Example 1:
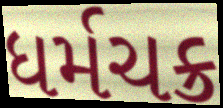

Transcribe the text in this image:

ધર્મચક્ર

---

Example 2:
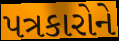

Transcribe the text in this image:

પત્રકારોને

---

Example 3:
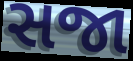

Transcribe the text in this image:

સજા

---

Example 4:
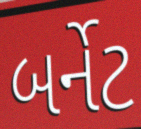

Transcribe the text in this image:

બર્નેટ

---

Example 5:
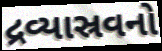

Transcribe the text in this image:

દ્રવ્યાસ્રવનો